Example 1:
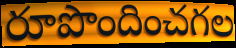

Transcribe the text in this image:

రూపొందించగల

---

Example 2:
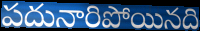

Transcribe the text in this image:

పదునారిపోయినది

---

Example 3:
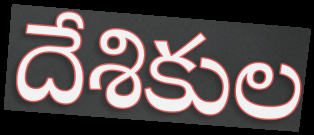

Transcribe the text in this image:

దేశికుల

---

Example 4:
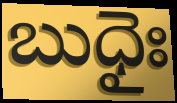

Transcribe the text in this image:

బుధైః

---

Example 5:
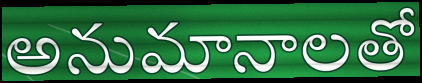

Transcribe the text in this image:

అనుమానాలతో